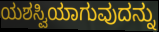
ಯಶಸ್ವಿಯಾಗುವುದನ್ನು